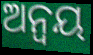
ଅନ୍ଵୟ